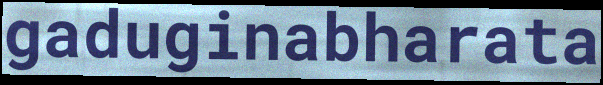
gaduginabharata